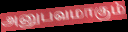
அனுபவமாகும்